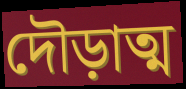
দৌড়াত্ম